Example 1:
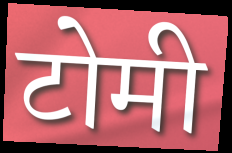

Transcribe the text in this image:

टोमी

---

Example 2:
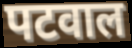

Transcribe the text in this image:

पटवाल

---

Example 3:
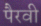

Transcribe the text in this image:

पैरवी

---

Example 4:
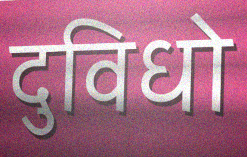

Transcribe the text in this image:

दुविधो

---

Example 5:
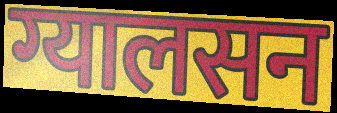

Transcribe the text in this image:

ग्यालसन